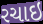
રચાઇ